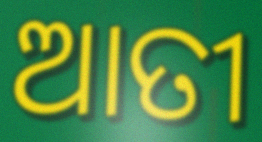
ଆତୀ